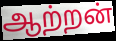
ஆற்றன்